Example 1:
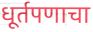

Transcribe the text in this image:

धूर्तपणाचा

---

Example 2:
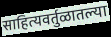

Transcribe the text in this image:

साहित्यवर्तुळातल्या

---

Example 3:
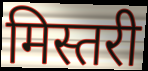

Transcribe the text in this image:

मिस्तरी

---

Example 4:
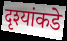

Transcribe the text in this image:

दृश्यांकडे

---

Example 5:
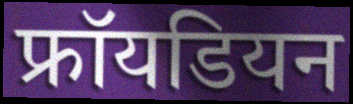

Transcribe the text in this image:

फ्रॉयडियन